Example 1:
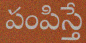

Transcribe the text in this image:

పంపిస్తే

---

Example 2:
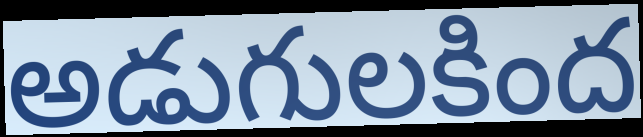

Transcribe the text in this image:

అడుగులకింద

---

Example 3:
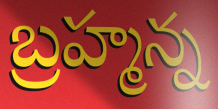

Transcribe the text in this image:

బ్రహ్మన్న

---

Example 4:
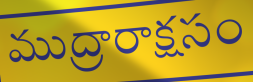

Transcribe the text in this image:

ముద్రారాక్షసం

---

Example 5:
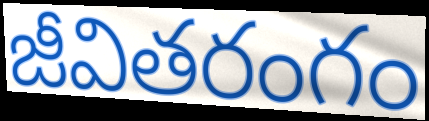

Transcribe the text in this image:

జీవితరంగం